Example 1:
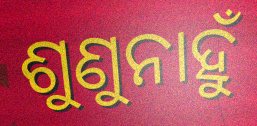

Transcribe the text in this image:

ଶୁଣୁନାହୁଁ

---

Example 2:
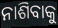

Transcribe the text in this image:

ନାଶିବାକୁ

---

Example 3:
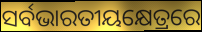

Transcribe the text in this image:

ସର୍ବଭାରତୀୟକ୍ଷେତ୍ରରେ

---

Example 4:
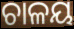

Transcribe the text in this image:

ଚାଳୟ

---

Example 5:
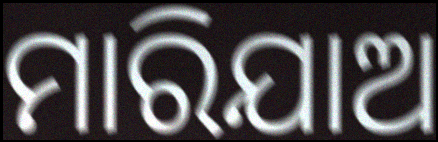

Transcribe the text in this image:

ମାରିଯାଅ